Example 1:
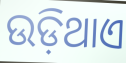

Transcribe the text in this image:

ଉଡ଼ିଥାଏ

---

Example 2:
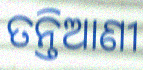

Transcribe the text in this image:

ତନ୍ତିଆଣୀ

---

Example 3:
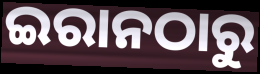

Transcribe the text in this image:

ଇରାନଠାରୁ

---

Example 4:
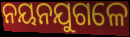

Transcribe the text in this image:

ନୟନଯୁଗଳେ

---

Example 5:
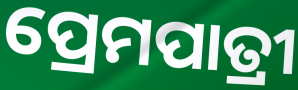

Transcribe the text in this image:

ପ୍ରେମପାତ୍ରୀ